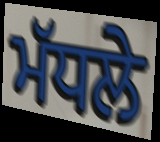
ਮੱਧਲੇ